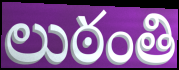
లుఠంతి